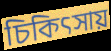
চিকিৎসায়